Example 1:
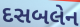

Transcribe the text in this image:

દસબલેન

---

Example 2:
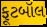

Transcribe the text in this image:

ફૂટબૉલ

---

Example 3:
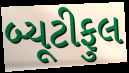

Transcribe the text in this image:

બ્યૂટીફુલ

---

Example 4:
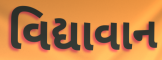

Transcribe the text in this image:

વિદ્યાવાન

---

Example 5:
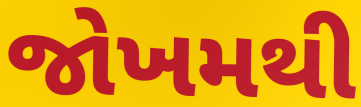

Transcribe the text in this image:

જોખમથી